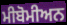
ਮੀਬੋਮੀਅਨ